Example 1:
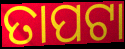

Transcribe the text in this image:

ତାପଟା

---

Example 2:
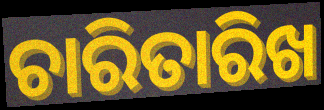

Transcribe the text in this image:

ଚାରିତାରିଖ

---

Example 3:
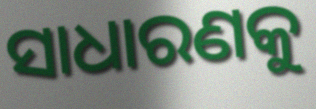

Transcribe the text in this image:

ସାଧାରଣକୁ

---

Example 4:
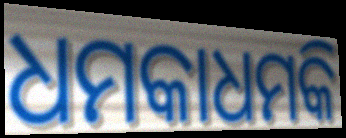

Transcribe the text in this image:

ଧମକାଧମକି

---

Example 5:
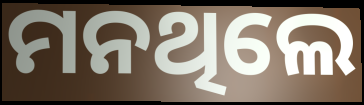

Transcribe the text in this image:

ମନଥିଲେ